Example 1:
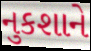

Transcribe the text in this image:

નુકશાને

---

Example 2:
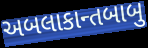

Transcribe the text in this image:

અબલાકાન્તબાબુ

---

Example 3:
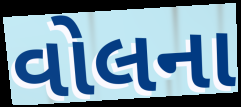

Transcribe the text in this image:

વોલના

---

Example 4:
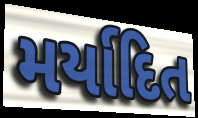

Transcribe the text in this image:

મર્યાદિત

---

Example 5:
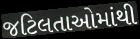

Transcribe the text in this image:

જટિલતાઓમાંથી